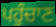
ਪਹੁੰਚਾਣ